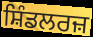
ਸ਼ਿੰਡਲਰਜ਼